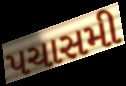
પચાસમી